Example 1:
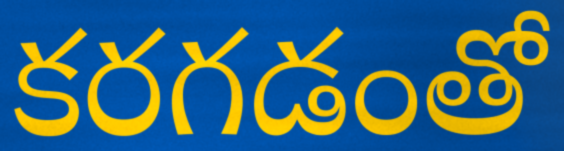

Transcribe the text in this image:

కరగడంతో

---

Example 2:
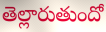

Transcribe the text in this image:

తెల్లారుతుందో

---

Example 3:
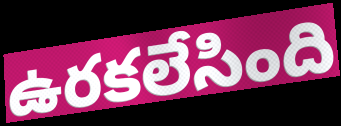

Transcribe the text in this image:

ఉరకలేసింది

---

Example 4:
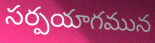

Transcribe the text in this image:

సర్పయాగమున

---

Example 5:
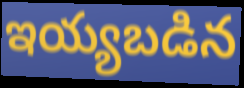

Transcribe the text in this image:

ఇయ్యబడిన